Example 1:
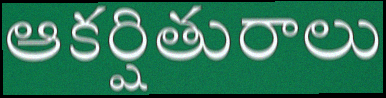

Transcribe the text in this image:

ఆకర్షితురాలు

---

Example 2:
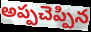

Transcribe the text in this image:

అప్పచెప్పిన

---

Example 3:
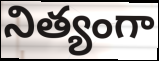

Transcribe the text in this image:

నిత్యంగా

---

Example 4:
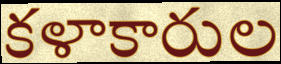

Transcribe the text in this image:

కళాకారుల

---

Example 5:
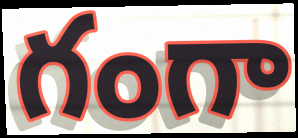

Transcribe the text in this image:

గంగా